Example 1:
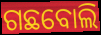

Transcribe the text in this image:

ଗଛବୋଲି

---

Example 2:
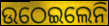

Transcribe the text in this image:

ଉଠେଇଲେନି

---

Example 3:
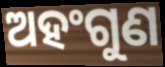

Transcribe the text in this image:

ଅହଂଗୁଣ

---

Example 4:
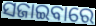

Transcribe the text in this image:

ସଜାଇବାରେ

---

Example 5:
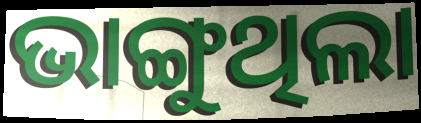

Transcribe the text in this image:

ଭାଙ୍ଗୁଥିଲା